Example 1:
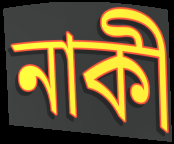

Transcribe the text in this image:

নাকী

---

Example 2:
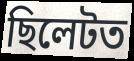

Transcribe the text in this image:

ছিলেটত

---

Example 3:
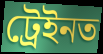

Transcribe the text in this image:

ট্ৰেইনত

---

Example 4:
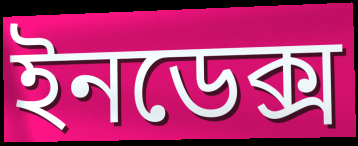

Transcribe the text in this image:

ইনডেক্স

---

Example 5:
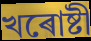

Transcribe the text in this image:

খৰোষ্টী